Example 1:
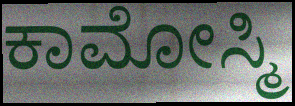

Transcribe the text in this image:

ಕಾಮೋಸ್ಮಿ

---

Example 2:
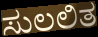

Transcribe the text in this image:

ಸುಲಲಿತ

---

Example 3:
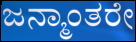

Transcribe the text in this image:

ಜನ್ಮಾಂತರೇ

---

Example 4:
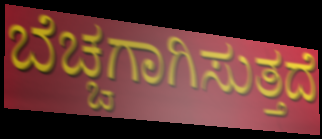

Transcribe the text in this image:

ಬೆಚ್ಚಗಾಗಿಸುತ್ತದೆ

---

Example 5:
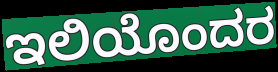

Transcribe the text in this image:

ಇಲಿಯೊಂದರ